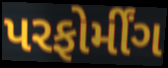
પરફોર્મીંગ